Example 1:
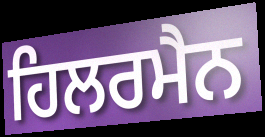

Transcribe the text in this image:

ਹਿਲਰਮੈਨ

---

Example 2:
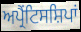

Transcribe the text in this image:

ਅਪ੍ਰੈਂਟਿਸਸ਼ਿਪਾਂ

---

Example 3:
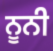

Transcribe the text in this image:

ਨੂਨੀ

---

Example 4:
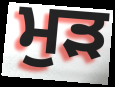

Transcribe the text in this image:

ਮੁੜ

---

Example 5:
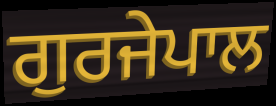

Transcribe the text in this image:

ਗੁਰਜੇਪਾਲ